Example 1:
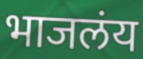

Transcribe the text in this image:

भाजलंय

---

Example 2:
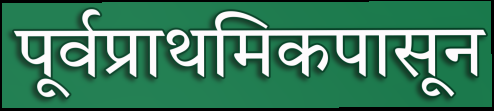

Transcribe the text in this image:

पूर्वप्राथमिकपासून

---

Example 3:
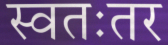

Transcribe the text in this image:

स्वतःतर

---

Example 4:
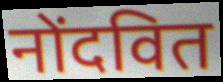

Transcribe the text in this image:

नोंदवित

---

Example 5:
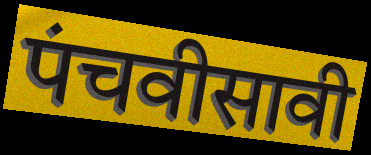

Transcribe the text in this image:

पंचवीसावी